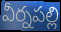
వీర్నపల్లి